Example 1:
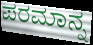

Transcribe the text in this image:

ಪರಮಾನ್ನ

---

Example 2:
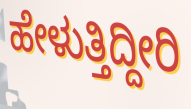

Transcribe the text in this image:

ಹೇಳುತ್ತಿದ್ದೀರಿ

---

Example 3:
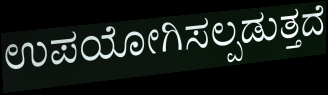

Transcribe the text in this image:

ಉಪಯೋಗಿಸಲ್ಪಡುತ್ತದೆ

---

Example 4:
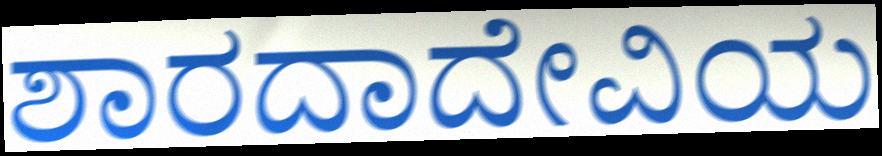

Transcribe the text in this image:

ಶಾರದಾದೇವಿಯ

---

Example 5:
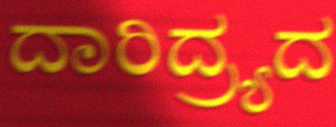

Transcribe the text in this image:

ದಾರಿದ್ರ್ಯದ